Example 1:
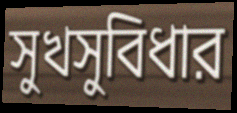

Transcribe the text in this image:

সুখসুবিধার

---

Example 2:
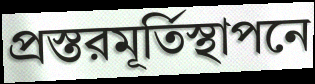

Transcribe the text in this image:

প্রস্তরমূর্তিস্থাপনে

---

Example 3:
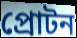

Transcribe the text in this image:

প্রোটন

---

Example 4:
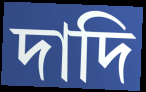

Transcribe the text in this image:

দাদি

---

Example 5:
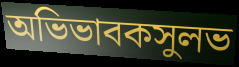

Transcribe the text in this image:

অভিভাবকসুলভ